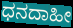
ಧನದಾಹೀ